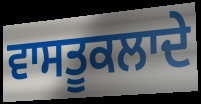
ਵਾਸਤੂਕਲਾਦੇ